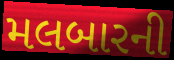
મલબારની